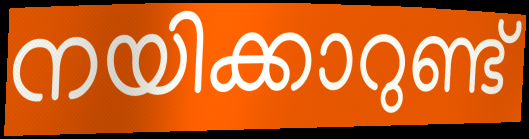
നയിക്കാറുണ്ട്